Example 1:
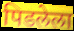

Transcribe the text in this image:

पिडलेला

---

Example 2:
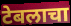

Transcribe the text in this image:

टेबलाचा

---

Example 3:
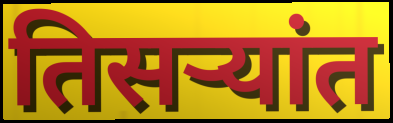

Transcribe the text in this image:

तिसर्‍यांत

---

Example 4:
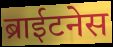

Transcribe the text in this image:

ब्राईटनेस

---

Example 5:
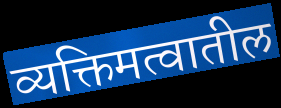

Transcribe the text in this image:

व्यक्तिमत्वातील